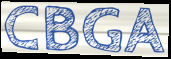
CBGA